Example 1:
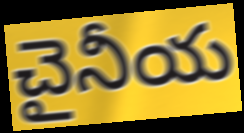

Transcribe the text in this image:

చైనీయ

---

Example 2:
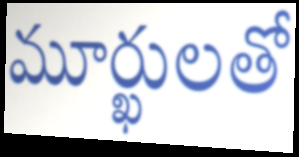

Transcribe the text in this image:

మూర్ఖులతో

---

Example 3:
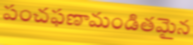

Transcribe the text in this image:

పంచఫణామండితమైన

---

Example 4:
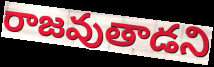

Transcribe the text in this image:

రాజవుతాడని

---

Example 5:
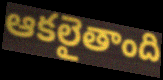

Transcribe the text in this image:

ఆకలైతాంది